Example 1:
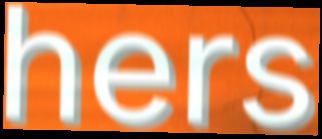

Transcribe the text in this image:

hers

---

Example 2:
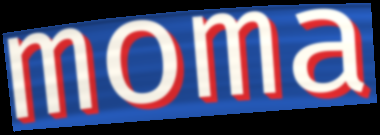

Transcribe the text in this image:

moma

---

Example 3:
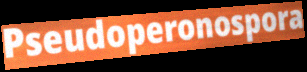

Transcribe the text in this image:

Pseudoperonospora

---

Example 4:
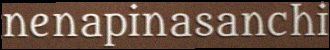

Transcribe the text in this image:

nenapinasanchi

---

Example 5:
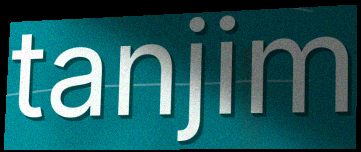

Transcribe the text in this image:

tanjim